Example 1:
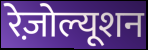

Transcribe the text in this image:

रेज़ोल्यूशन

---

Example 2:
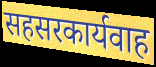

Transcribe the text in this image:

सहसरकार्यवाह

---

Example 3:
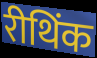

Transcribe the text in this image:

रीथिंक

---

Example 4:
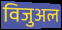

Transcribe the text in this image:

विजुअल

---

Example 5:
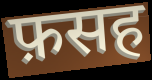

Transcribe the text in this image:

फ़सह